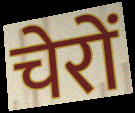
चेरों